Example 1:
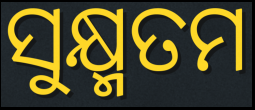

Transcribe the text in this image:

ସୁକ୍ଷ୍ମତମ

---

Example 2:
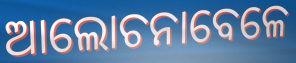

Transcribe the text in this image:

ଆଲୋଚନାବେଳେ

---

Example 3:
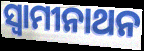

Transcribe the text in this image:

ସ୍ୱାମୀନାଥନ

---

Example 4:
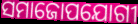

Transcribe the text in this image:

ସମାଜୋପଯୋଗୀ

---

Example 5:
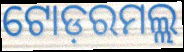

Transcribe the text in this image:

ଟୋଡ଼ରମଲ୍ଲ